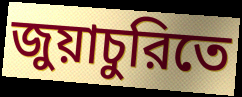
জুয়াচুরিতে